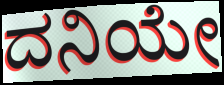
ದನಿಯೇ